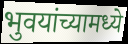
भुवयांच्यामध्ये